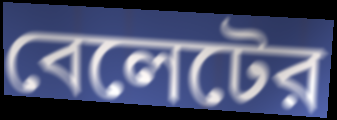
বেলেটের